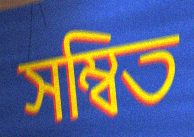
সম্বিত